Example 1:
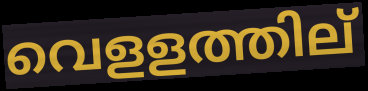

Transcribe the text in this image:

വെളളത്തില്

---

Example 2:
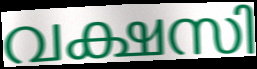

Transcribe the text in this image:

വക്ഷസി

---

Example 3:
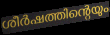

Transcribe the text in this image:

ശീർഷത്തിന്റെയും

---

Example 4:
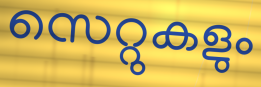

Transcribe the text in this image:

സെറ്റുകളും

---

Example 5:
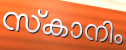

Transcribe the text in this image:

സ്‌കാനിം